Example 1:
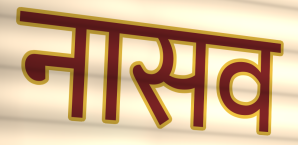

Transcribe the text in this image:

नासव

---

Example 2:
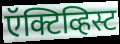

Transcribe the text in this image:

ऍक्टिव्हिस्ट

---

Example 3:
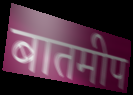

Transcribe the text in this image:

बातमीप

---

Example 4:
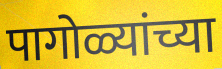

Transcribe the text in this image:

पागोळ्यांच्या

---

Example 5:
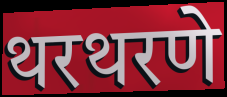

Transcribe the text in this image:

थरथरणे